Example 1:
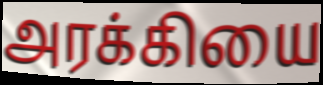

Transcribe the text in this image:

அரக்கியை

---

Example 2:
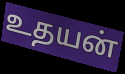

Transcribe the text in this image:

உதயன்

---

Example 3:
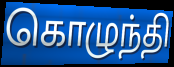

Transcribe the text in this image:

கொழுந்தி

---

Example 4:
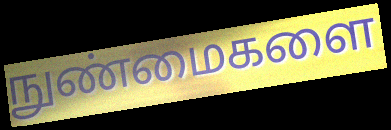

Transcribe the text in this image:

நுண்மைகளை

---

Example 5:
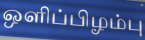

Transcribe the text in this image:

ஒளிப்பிழம்பு